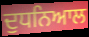
ਦੁਧਨਿਆਲ